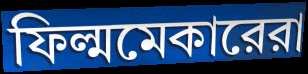
ফিল্মমেকারেরা